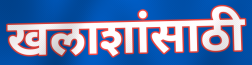
खलाशांसाठी